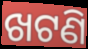
ଖଟଣି